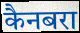
कैनबरा